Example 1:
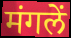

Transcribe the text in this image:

मंगलें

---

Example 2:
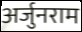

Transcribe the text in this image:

अर्जुनराम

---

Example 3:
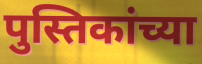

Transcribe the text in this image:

पुस्तिकांच्या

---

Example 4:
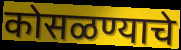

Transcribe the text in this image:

कोसळण्याचे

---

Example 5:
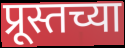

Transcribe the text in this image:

प्रूस्तच्या